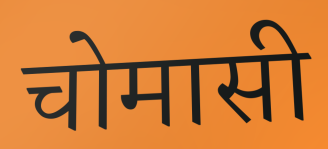
चोमासी